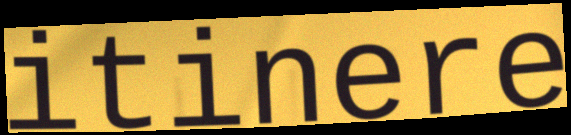
itinere